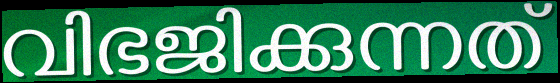
വിഭജിക്കുന്നത്